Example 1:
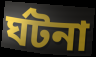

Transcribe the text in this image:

র্ঘটনা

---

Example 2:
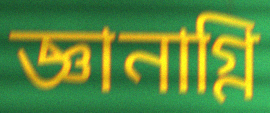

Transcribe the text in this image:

জ্ঞানাগ্নি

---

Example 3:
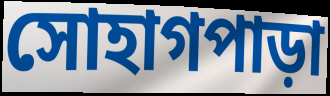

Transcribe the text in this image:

সোহাগপাড়া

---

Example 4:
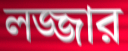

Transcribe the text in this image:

লজ্জার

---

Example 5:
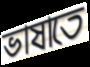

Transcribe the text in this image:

ভাষাতে